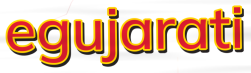
egujarati